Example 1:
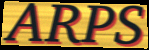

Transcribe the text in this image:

ARPS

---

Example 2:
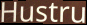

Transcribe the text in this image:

Hustru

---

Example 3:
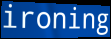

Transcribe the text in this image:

ironing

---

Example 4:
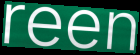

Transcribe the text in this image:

reen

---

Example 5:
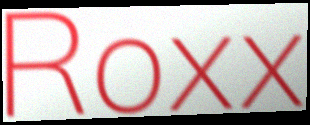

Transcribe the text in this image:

Roxx